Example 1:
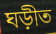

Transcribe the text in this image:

ঘড়ীত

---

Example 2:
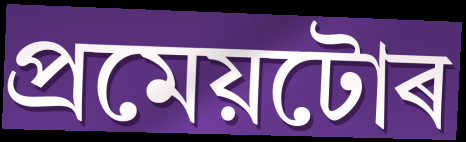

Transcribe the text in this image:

প্ৰমেয়টোৰ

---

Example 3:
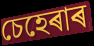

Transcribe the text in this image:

চেহেৰাৰ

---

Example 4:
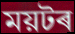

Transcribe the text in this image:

ময়টৰ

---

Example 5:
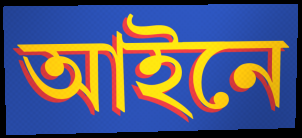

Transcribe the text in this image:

আইনে